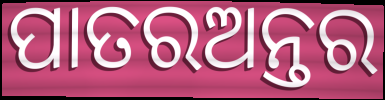
ପାତରଅନ୍ତର